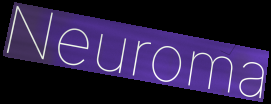
Neuroma